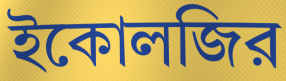
ইকোলজির